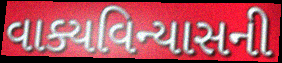
વાક્યવિન્યાસની